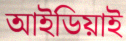
আইডিয়াই